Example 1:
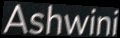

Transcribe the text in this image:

Ashwini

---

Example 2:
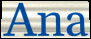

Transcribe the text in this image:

Ana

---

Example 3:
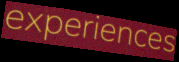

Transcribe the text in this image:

experiences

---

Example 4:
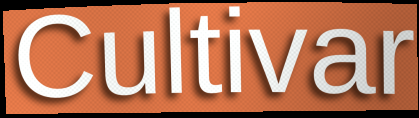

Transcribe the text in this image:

Cultivar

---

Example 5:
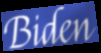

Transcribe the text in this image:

Biden